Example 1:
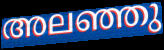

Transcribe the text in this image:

അലഞ്ഞു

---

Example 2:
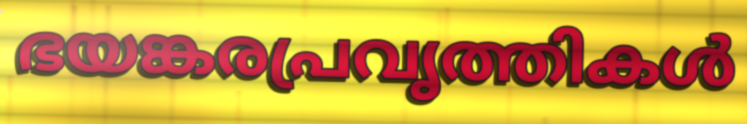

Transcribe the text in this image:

ഭയങ്കരപ്രവൃത്തികൾ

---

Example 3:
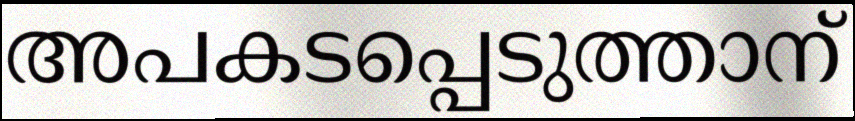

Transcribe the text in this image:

അപകടപ്പെടുത്താന്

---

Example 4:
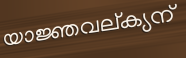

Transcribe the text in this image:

യാജ്ഞവല്ക്യന്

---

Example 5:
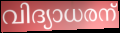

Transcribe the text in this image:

വിദ്യാധരന്